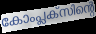
കോംപ്ലക്‌സിന്റെ